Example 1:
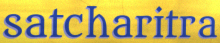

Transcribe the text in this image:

satcharitra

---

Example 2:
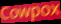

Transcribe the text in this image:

Cowpox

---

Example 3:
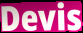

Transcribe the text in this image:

Devis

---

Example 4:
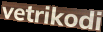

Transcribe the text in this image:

vetrikodi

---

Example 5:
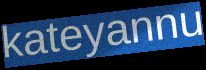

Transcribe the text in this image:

kateyannu